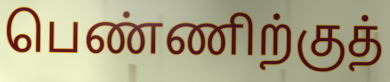
பெண்ணிற்குத்